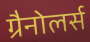
ग्रैनोलर्स